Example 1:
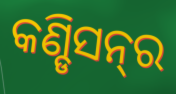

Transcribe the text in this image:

କଣ୍ଡିସନ୍‌ର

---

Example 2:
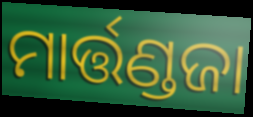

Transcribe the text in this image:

ମାର୍ତ୍ତଣ୍ଡଜା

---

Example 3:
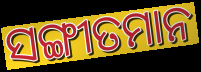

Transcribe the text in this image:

ସଙ୍ଗୀତମାନ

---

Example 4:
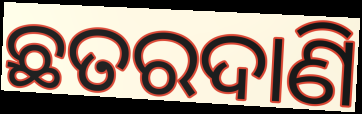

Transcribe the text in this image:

ଛତରଦାଣି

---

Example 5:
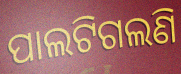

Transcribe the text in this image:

ପାଲଟିଗଲଣି